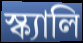
স্ক্যালি